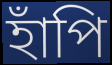
হাঁপি